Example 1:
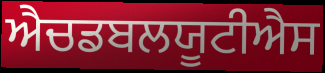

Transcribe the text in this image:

ਐਚਡਬਲਯੂਟੀਐਸ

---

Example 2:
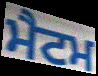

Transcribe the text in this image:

ਮੈਟਮ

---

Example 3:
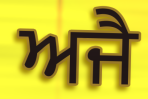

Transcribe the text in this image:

ਅਜੈ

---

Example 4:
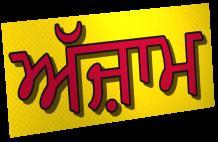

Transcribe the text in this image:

ਅੱਜ਼ਾਮ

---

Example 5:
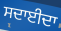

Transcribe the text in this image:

ਸਦਾਈਦਾ